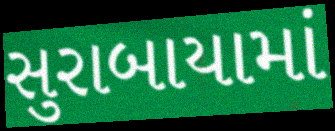
સુરાબાયામાં